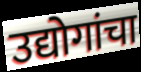
उद्योगांचा